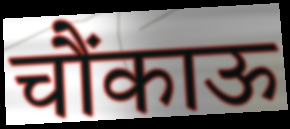
चौंकाऊ